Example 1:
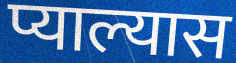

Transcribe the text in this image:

प्याल्यास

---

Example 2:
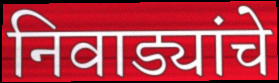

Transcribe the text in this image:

निवाड्यांचे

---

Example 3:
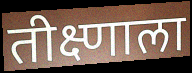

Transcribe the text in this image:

तीक्ष्णाला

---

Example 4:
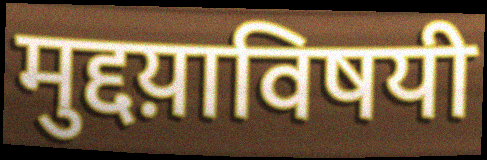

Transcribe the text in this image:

मुद्दय़ाविषयी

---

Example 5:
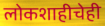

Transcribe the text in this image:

लोकशाहीचेही